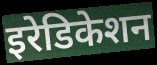
इरेडिकेशन